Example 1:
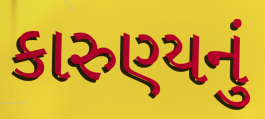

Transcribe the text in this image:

કારુણ્યનું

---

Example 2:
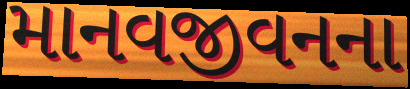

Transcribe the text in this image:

માનવજીવનના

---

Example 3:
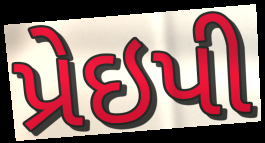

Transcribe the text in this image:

પ્રેઇપી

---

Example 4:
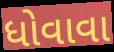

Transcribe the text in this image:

ધોવાવા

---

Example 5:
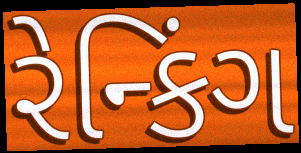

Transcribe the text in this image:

રેન્કિંગ